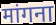
मांगना